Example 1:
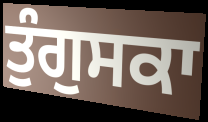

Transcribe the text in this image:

ਤੁੰਗੁਸਕਾ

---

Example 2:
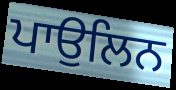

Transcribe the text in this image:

ਪਾਉਲਿਨ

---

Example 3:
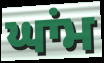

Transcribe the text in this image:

ਘਾਂਮ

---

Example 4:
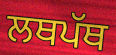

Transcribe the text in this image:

ਲਥਪੱਥ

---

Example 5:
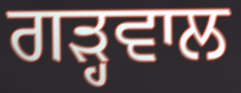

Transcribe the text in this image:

ਗੜ੍ਹਵਾਲ